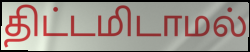
திட்டமிடாமல்